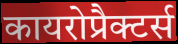
कायरोप्रैक्टर्स